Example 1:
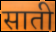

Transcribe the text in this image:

साती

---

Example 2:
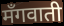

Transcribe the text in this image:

मँगवाती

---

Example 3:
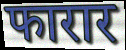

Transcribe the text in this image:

फारार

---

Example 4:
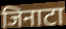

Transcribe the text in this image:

जिनाटा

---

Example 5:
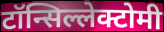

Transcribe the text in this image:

टॉन्सिल्लेक्टोमी